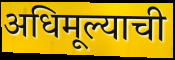
अधिमूल्याची